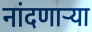
नांदणार्‍या